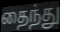
தைந்து